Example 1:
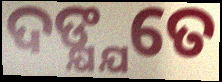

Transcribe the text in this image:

ଦଙ୍କ୍ଷ୍ଯତେ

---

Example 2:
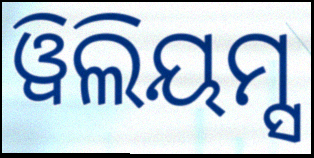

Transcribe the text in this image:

ୱିଲିୟମ୍ସ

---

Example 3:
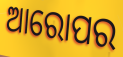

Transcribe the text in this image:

ଆରୋପର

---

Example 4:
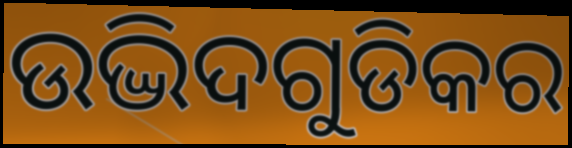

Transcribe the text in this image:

ଉଦ୍ଭିଦଗୁଡିକର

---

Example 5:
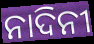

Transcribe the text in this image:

ନାଦିନୀ